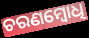
ଚରଣମ୍ବୋଧି